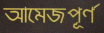
আমেজপূর্ণ